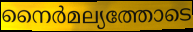
നൈർമല്യത്തോടെ